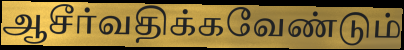
ஆசீர்வதிக்கவேண்டும்